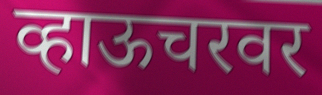
व्हाऊचरवर